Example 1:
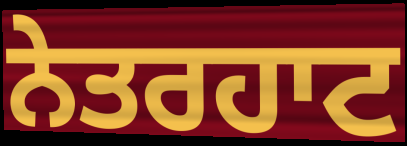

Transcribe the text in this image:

ਨੇਤਰਹਾਟ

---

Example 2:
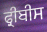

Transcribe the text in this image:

ਫ੍ਰੀਬੀਸ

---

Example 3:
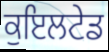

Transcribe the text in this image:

ਕੁਇਲਟੇਡ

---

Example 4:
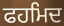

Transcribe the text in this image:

ਫਹਮਿਦ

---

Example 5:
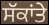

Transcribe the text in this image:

ਸੱਕਾਂਤੇ